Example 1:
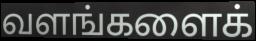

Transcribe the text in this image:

வளங்களைக்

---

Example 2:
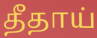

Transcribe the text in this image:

தீதாய்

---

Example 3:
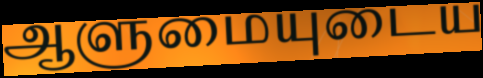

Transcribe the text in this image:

ஆளுமையுடைய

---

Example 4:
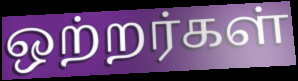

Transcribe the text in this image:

ஒற்றர்கள்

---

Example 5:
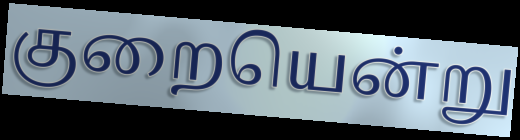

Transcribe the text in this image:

குறையென்று